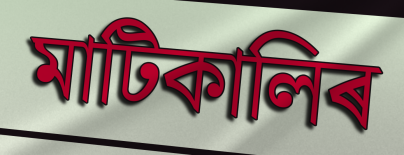
মাটিকালিৰ